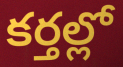
కర్తల్లో